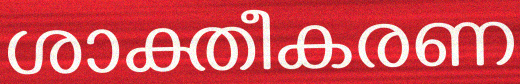
ശാക്തീകരണ